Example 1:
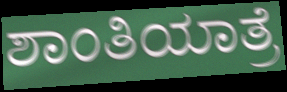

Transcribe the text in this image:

ಶಾಂತಿಯಾತ್ರೆ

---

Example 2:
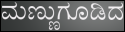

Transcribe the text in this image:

ಮಣ್ಣುಗೂಡಿದ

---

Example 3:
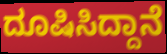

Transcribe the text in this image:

ದೂಷಿಸಿದ್ದಾನೆ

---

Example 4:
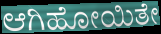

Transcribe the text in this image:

ಆಗಿಹೋಯಿತೇ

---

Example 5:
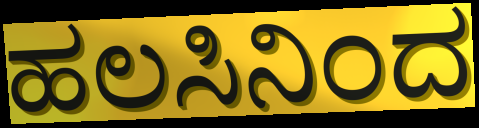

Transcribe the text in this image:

ಹಲಸಿನಿಂದ